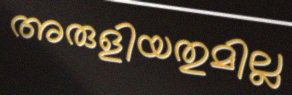
അരുളിയതുമില്ല